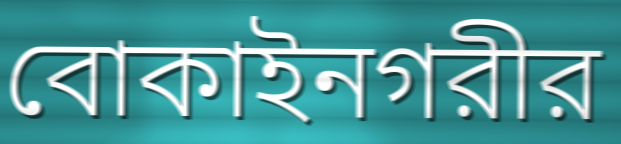
বোকাইনগরীর